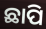
ଛାପି